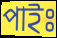
পাইঃ